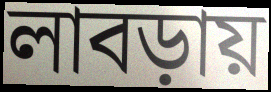
লাবড়ায়